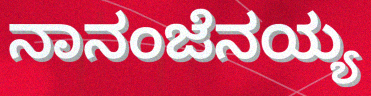
ನಾನಂಜೆನಯ್ಯ